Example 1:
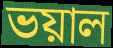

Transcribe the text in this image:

ভয়াল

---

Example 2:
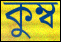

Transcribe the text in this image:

কুম্ব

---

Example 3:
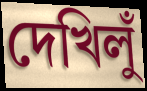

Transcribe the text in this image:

দেখিলুঁ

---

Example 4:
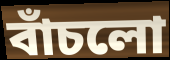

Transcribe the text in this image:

বাঁচলো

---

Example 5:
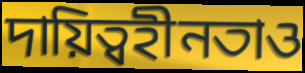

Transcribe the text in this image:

দায়িত্বহীনতাও